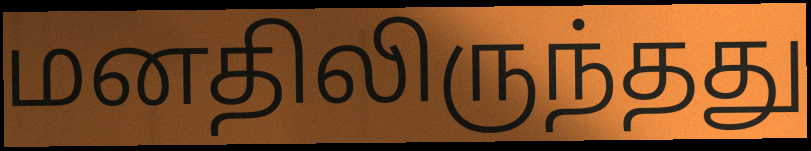
மனதிலிருந்தது